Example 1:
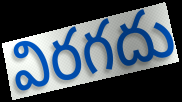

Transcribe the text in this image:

విరగదు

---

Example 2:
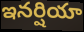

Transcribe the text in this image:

ఇనర్షియా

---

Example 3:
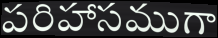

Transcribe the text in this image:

పరిహాసముగా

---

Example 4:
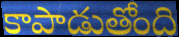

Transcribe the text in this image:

కాపాడుతోంది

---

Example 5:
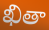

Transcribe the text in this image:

ఖితా